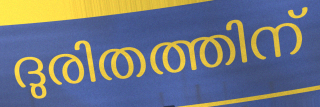
ദുരിതത്തിന്